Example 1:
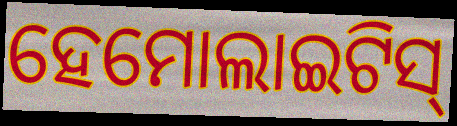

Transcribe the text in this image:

ହେମୋଲାଇଟିସ୍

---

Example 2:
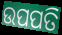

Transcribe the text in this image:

ଉପପତି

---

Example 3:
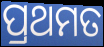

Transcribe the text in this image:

ପ୍ରଥମତ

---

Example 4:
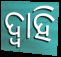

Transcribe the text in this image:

ଦ୍ଵାହି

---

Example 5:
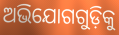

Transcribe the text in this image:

ଅଭିଯୋଗଗୁଡ଼ିକୁ